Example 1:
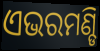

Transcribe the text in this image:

ଏଭରମଣ୍ଡି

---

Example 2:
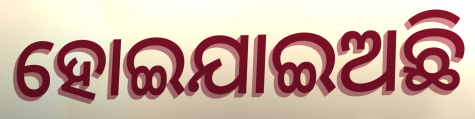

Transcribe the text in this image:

ହୋଇଯାଇଅଛି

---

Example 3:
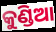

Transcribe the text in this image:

କୁଣ୍ଡିଆ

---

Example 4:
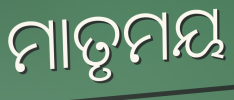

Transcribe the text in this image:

ମାତୃମୟ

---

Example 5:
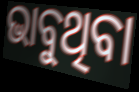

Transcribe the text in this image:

ଭାବୁଥିବା